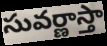
సువర్ణాస్తా